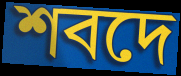
শবদে